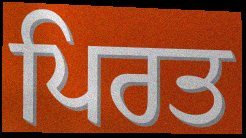
ਪਿਰਤ